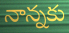
నాన్నకు